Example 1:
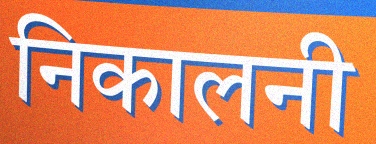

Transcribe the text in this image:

निकालनी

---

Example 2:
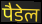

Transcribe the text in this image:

पैडेल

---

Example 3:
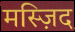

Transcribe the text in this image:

मस्ज़िद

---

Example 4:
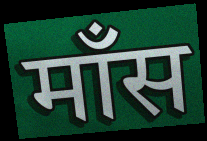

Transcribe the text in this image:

माँस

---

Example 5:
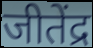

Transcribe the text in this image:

जीतेंद्र